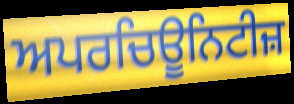
ਅਪਰਚਿਊਨਿਟੀਜ਼